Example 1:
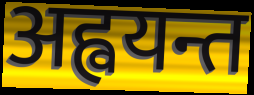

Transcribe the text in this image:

अह्वयन्त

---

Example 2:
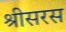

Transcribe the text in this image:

श्रीसरस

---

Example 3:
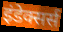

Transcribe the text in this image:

इंडेक्सर्स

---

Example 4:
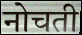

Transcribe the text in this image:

नोचती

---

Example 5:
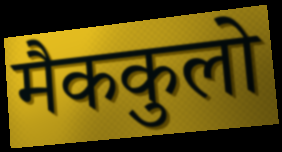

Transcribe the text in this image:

मैककुलो